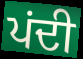
ਪਂਦੀ